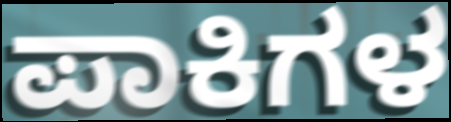
ಪಾಕಿಗಳ